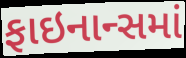
ફાઇનાન્સમાં